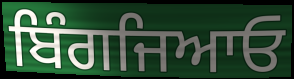
ਬਿੰਗਜਿਆਓ